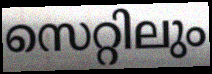
സെറ്റിലും